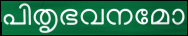
പിതൃഭവനമോ